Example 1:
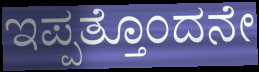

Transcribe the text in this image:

ಇಪ್ಪತ್ತೊಂದನೇ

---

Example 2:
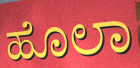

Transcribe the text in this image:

ಹೊಲಾ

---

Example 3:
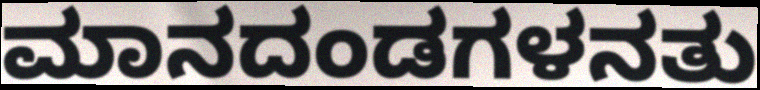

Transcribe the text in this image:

ಮಾನದಂಡಗಳನತು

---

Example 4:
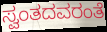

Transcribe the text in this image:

ಸ್ವಂತದವರಂತೆ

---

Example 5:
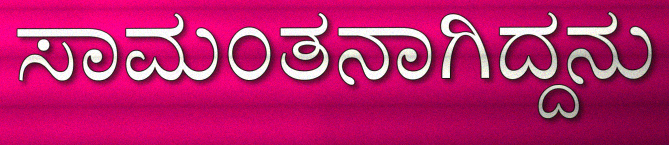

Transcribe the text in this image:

ಸಾಮಂತನಾಗಿದ್ದನು